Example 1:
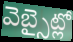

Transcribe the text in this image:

వెబ్సైట్లో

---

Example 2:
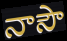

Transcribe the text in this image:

నాసౌ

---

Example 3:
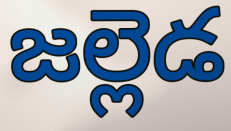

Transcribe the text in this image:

జల్లెడ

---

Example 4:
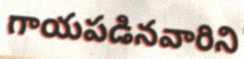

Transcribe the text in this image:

గాయపడినవారిని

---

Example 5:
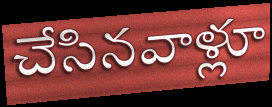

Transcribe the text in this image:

చేసినవాళ్లూ